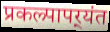
प्रकल्पापर्यंत